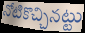
నోటికొచ్చినట్టు